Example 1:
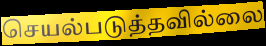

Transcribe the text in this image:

செயல்படுத்தவில்லை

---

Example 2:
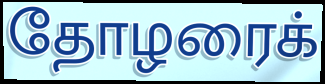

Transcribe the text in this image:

தோழரைக்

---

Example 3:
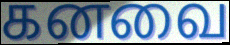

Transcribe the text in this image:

கனவை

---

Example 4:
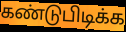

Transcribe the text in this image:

கண்டுபிடிக்க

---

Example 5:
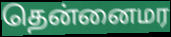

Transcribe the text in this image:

தென்னைமர